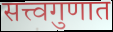
सत्त्वगुणात